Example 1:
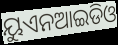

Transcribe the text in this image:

ୟୁଏନଆଇଡିଓ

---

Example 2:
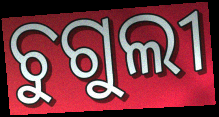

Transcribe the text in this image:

ଚୁଗୁଲୀ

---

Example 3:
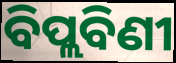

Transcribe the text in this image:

ବିପ୍ଲବିଣୀ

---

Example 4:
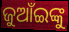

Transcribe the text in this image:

ଜୁଆଁଇଙ୍କୁ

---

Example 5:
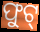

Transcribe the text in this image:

ଫୁଟ୍